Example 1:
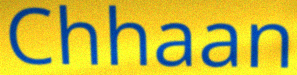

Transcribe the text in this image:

Chhaan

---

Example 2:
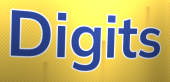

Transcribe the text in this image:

Digits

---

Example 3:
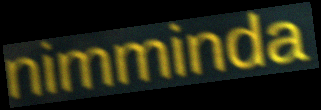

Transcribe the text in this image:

nimminda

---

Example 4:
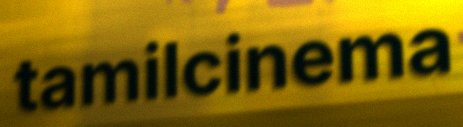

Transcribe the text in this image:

tamilcinema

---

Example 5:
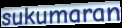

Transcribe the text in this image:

sukumaran